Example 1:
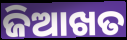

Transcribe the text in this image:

ଜିଆଖତ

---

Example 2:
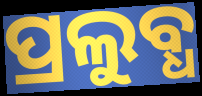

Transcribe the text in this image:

ପ୍ରଲୁବ୍ଧ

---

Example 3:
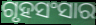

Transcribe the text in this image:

ଗୃହସଂସାର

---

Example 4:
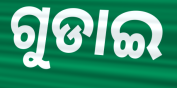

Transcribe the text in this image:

ଗୁଡାଇ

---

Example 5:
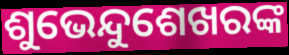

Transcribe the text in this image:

ଶୁଭେନ୍ଦୁଶେଖରଙ୍କ